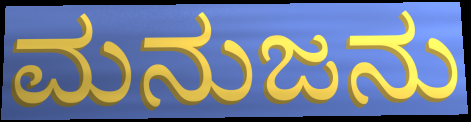
ಮನುಜನು